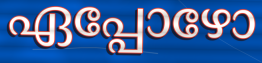
ഏപ്പോഴോ